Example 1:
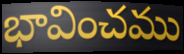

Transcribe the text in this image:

భావించము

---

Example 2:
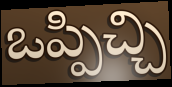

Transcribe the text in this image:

ఒప్పిచ్చి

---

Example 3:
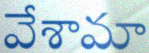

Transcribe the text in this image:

వేశామా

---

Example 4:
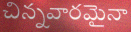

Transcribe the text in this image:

చిన్నవారమైనా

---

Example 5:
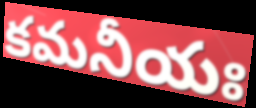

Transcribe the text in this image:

కమనీయః